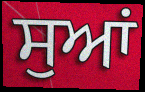
ਸੁਆਂ